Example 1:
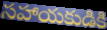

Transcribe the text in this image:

సహాయకుడికి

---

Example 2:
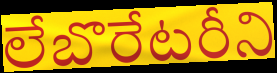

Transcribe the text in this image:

లేబొరేటరీని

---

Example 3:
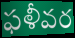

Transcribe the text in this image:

ఫళీవర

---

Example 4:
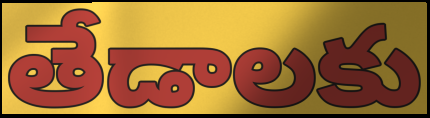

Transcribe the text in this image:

తేడాలకు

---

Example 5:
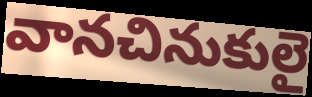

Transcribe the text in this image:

వానచినుకులై